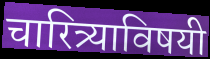
चारित्र्याविषयी